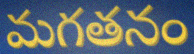
మగతనం